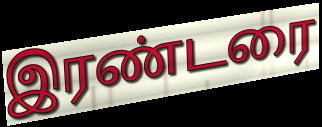
இரண்டரை